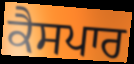
ਕੈਸਪਾਰ